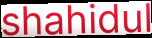
shahidul